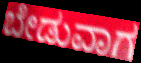
ಬೇಡುವಾಗ